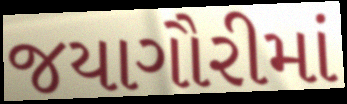
જયાગૌરીમાં